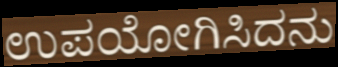
ಉಪಯೋಗಿಸಿದನು